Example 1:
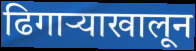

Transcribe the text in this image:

ढिगाऱ्याखालून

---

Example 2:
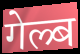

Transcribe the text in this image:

गेल्ब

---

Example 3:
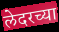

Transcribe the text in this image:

लेदरच्या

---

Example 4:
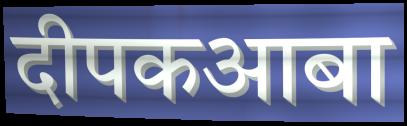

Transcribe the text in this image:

दीपकआबा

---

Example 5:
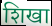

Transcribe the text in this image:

शिखा